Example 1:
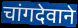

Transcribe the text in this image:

चांगदेवाने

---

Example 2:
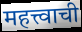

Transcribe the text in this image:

महत्त्वाची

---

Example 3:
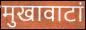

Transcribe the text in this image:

मुखावाटां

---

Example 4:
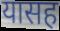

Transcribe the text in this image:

यासह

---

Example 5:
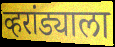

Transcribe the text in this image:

व्हरांड्याला